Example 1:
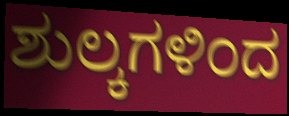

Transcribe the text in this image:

ಶುಲ್ಕಗಳಿಂದ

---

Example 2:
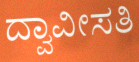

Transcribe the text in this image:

ದ್ವಾವೀಸತಿ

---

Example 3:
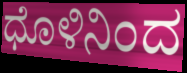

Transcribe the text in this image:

ಧೊಳಿನಿಂದ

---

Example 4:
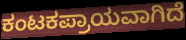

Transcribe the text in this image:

ಕಂಟಕಪ್ರಾಯವಾಗಿದೆ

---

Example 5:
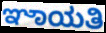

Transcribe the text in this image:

ಞಾಯತಿ